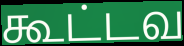
கூட்டவ